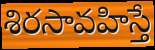
శిరసావహిస్తే